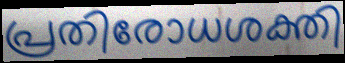
പ്രതിരോധശക്തി